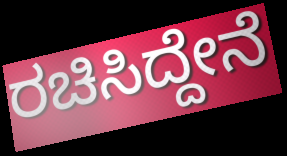
ರಚಿಸಿದ್ದೇನೆ